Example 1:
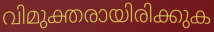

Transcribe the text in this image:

വിമുക്തരായിരിക്കുക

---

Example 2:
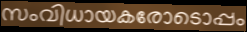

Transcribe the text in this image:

സംവിധായകരോടൊപ്പം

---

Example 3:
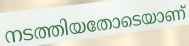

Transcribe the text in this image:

നടത്തിയതോടെയാണ്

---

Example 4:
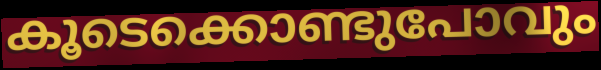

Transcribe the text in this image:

കൂടെക്കൊണ്ടുപോവും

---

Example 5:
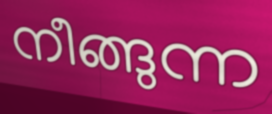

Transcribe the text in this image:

നീങ്ങുന്ന